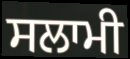
ਸਲਾਮੀ